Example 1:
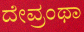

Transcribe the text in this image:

ದೇವ್ರಂಥಾ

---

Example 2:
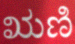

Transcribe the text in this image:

ಋಣಿ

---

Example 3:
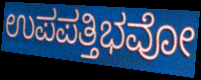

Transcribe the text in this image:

ಉಪಪತ್ತಿಭವೋ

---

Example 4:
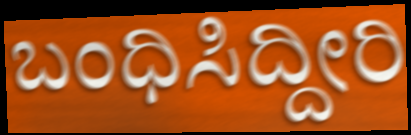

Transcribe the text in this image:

ಬಂಧಿಸಿದ್ದೀರಿ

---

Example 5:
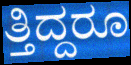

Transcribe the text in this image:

ತ್ತಿದ್ದರೂ